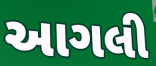
આગલી